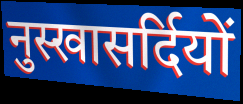
नुस्खासर्दियों